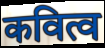
कवित्व